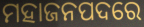
ମହାଜନପଦରେ